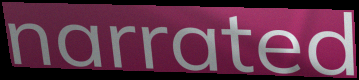
narrated